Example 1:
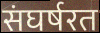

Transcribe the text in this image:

संघर्षरत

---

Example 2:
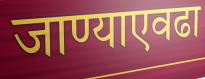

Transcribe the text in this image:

जाण्याएवढा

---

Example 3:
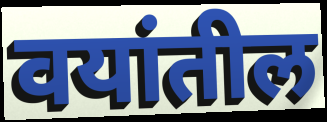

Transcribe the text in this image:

वयांतील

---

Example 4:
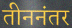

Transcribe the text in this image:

तीननंतर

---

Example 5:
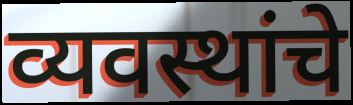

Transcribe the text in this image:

व्यवस्थांचे